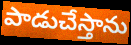
పాడుచేస్తాను